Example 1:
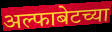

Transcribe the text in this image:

अल्फाबेटच्या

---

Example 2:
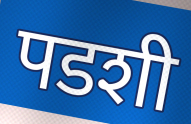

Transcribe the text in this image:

पडशी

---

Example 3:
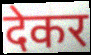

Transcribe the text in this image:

देकर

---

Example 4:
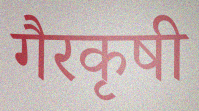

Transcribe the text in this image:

गैरकृषी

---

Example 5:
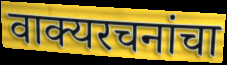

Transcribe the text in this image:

वाक्यरचनांचा